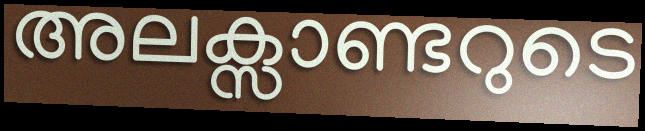
അലക്സാണ്ടറുടെ